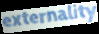
externality